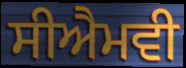
ਸੀਐਮਵੀ